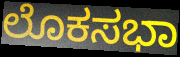
ಲೊಕಸಭಾ